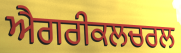
ਐਗਰੀਕਲਚਰਲ